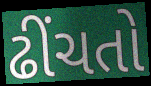
ઢીંચતો